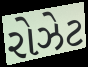
રોઝેટ